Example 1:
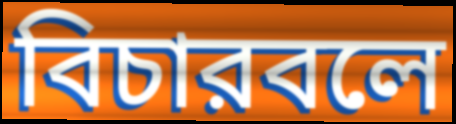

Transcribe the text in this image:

বিচারবলে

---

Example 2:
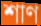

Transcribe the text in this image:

শাণ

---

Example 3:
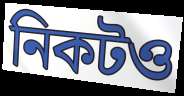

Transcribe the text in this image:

নিকটও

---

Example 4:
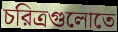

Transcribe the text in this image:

চরিত্রগুলোতে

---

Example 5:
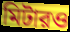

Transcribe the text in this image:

মিটারও